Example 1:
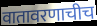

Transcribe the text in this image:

वातावरणाचीच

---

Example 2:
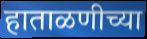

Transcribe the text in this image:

हाताळणीच्या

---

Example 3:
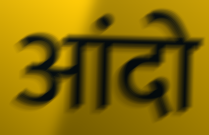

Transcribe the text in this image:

आंदो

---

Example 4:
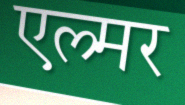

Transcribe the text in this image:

एल्मर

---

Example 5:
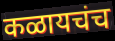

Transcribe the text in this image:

कळायचंच